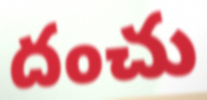
దంచు